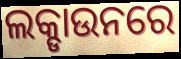
ଲକ୍ଡାଉନରେ